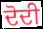
ਦੋਦੀ